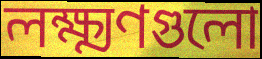
লক্ষ্মণগুলো